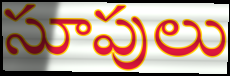
సూపులు